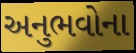
અનુભવોના